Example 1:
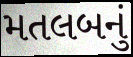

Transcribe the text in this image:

મતલબનું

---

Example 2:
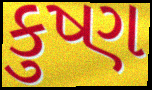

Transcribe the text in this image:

કુષ્ણ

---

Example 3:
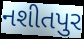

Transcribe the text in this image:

નશીતપુર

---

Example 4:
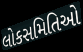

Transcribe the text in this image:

લોકસમિતિઓ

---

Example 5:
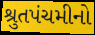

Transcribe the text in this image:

શ્રુતપંચમીનો